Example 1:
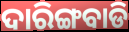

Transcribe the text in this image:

ଦାରିଙ୍ଗବାଡି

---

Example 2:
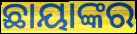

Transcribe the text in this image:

ଛାୟାଙ୍କର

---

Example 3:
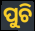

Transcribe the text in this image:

ପୁଚି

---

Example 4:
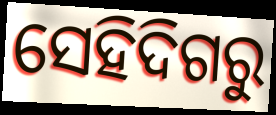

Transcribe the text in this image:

ସେହିଦିଗରୁ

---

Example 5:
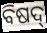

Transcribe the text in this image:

ବିଷଦ୍